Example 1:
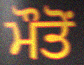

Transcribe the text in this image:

ਮੌਤੋਂ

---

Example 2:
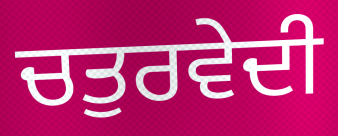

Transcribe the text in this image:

ਚਤੁਰਵੇਦੀ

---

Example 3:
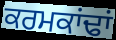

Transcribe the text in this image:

ਕਰਮਕਾਂਢਾਂ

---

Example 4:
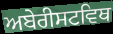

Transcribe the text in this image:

ਅਬੇਰੀਸਟਵਿਥ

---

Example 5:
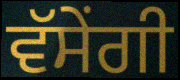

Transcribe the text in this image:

ਵੱਸੇਂਗੀ